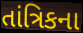
તાંત્રિકના